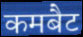
कमबैट